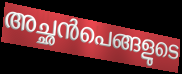
അച്ഛൻപെങ്ങളുടെ